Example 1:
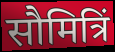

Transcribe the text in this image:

सौमित्रिं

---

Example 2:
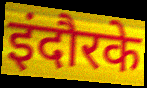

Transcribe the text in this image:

इंदौरके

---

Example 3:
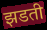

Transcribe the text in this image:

झडती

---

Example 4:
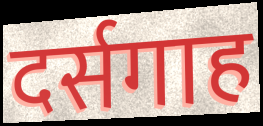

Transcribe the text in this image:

दर्सगाह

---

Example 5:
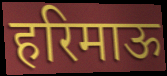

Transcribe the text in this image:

हरिमाऊ